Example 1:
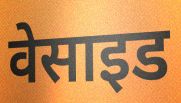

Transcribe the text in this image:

वेसाइड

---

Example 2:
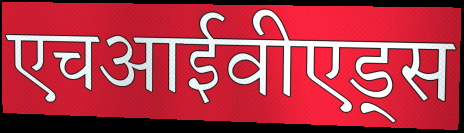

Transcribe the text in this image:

एचआईवीएड्स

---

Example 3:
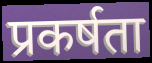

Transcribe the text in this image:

प्रकर्षता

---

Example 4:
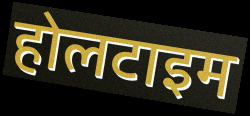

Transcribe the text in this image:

होलटाइम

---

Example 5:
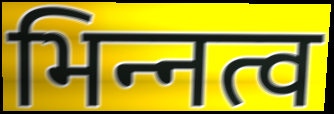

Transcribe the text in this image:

भिन्नत्व